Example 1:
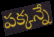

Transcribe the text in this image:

పక్కన్నే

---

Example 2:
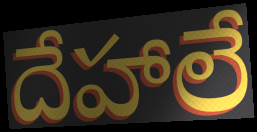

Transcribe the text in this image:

దేహాలే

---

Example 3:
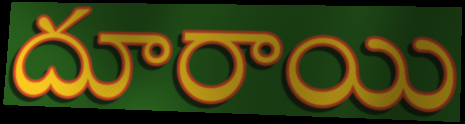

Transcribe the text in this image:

దూరాయి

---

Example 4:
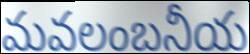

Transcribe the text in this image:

మవలంబనీయ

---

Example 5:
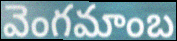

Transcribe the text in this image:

వెంగమాంబ